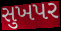
સુખપર